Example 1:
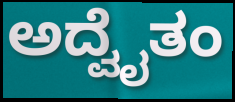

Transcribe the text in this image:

ಅದ್ವೈತಂ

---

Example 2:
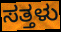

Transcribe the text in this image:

ಸತ್ತಳು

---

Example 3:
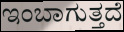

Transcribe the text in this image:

ಇಂಬಾಗುತ್ತದೆ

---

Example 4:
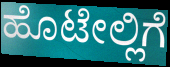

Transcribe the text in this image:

ಹೊಟೇಲ್ಲಿಗೆ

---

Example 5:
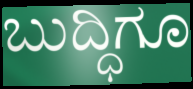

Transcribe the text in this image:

ಬುದ್ಧಿಗೂ